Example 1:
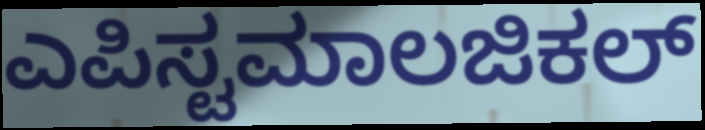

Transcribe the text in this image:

ಎಪಿಸ್ಟಮಾಲಜಿಕಲ್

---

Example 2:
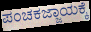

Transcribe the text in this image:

ಪಂಚಕಜ್ಜಾಯಕ್ಕೆ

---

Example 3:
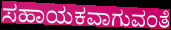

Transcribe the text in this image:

ಸಹಾಯಕವಾಗುವಂತೆ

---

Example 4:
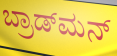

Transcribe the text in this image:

ಬ್ರಾಡ್‌ಮನ್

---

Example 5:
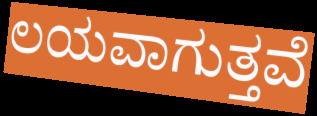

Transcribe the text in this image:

ಲಯವಾಗುತ್ತವೆ